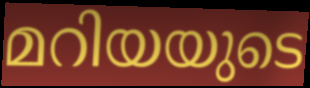
മറിയയുടെ